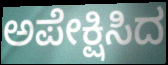
ಅಪೇಕ್ಷಿಸಿದ